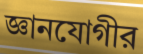
জ্ঞানযোগীর